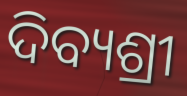
ଦିବ୍ୟଶ୍ରୀ